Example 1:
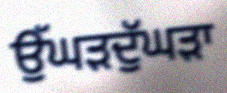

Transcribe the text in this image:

ਉੱਘੜਦੁੱਘੜਾ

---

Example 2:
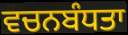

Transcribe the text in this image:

ਵਚਨਬੰਧਤਾ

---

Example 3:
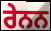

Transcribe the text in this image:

ਰੇਨਨ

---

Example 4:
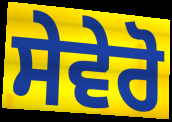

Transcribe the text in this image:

ਸੇਵੇਰੋ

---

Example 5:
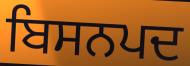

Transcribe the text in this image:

ਬਿਸਨਪਦ